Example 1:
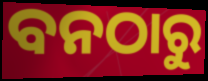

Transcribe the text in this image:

ବନଠାରୁ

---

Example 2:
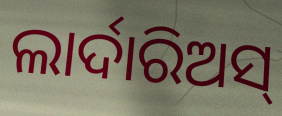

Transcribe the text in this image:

ଲାର୍ଦାରିଅସ୍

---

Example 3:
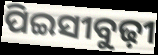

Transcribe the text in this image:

ପିଇସୀବୁଢ଼ୀ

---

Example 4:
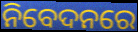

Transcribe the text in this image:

ନିବେଦନରେ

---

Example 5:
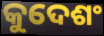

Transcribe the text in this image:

କୁଦେଶଂ